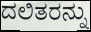
ದಲಿತರನ್ನು